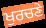
ਖੁਰਚਣੇ